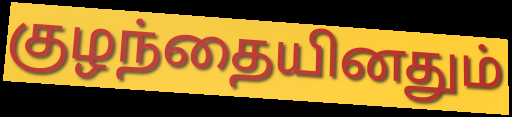
குழந்தையினதும்